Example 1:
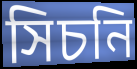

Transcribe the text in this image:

সিচনি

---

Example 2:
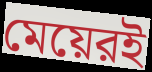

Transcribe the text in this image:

মেয়েরই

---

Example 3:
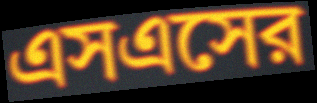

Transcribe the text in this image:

এসএসের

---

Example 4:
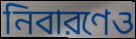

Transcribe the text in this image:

নিবারণেও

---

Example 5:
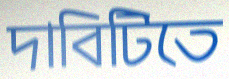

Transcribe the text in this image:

দাবিটিতে